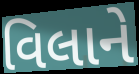
વિલાને